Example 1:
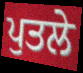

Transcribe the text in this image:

ਪੁਤਲੇ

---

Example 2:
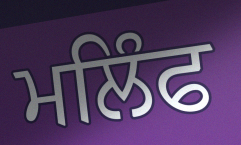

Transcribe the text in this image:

ਮਲਿੰਫ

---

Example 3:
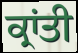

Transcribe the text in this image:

ਕ੍ਰਾਂਤੀ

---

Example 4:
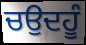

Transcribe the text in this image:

ਚਉਦਹੂੰ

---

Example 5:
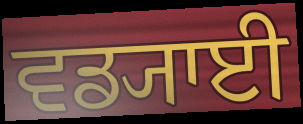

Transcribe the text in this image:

ਵਡ੍ਯਾਈ